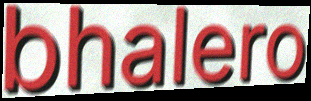
bhalero